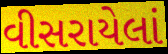
વીસરાયેલાં